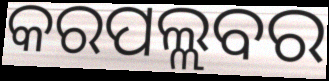
କରପଲ୍ଲବର